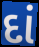
દાં